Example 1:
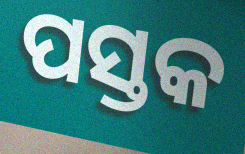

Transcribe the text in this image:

ପସ୍ତକ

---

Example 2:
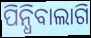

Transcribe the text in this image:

ପିନ୍ଧିବାଲାଗି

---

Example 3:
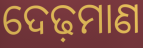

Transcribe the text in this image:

ଦେଢ଼ମାଣ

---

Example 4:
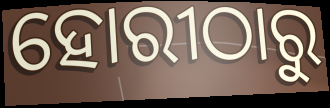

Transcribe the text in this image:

ହୋରୀଠାରୁ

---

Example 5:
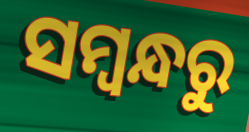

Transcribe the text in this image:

ସମ୍ୱନ୍ଧରୁ